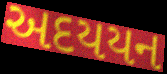
અદયયન